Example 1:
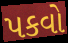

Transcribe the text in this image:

પકવો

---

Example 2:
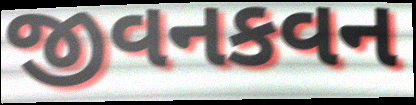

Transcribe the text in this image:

જીવનકવન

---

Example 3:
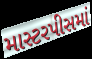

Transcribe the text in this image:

માસ્ટરપીસમાં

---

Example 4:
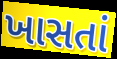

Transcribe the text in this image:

ખાસતાં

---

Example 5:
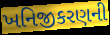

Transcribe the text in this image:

ખનિજીકરણની